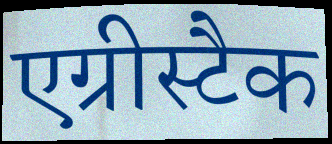
एग्रीस्टैक